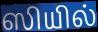
ஸியில்